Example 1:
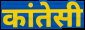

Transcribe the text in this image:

कांतेसी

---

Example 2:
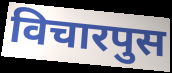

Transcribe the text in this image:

विचारपुस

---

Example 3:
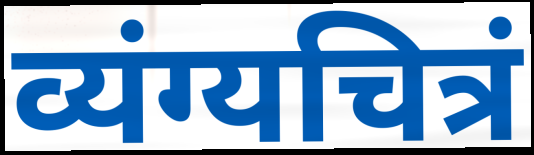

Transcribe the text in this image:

व्यंग्यचित्रं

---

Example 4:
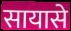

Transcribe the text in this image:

सायासे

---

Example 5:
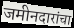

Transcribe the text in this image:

जमीनदारांचा